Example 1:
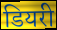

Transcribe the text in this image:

डियरी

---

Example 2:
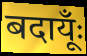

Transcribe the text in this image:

बदायूँः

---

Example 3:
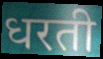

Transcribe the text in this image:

धरती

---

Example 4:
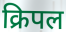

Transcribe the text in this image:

क्रिपल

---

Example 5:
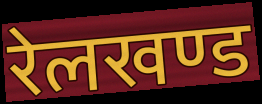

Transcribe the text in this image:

रेलखण्ड